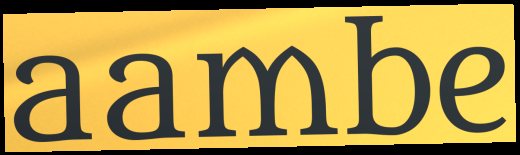
aambe